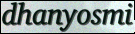
dhanyosmi